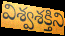
విశ్వశక్తిని